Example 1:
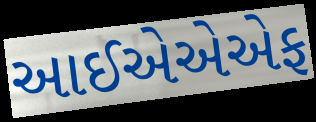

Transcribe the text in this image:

આઈએએએફ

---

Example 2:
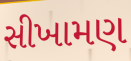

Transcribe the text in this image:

સીખામણ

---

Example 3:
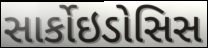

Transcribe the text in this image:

સાર્કોઇડોસિસ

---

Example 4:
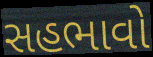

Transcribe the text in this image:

સહભાવો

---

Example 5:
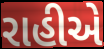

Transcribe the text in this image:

રાહીએ